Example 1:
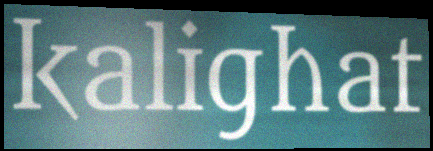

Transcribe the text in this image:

kalighat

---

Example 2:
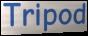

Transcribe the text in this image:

Tripod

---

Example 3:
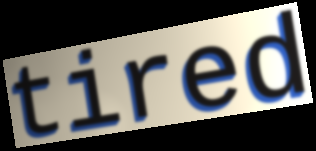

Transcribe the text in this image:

tired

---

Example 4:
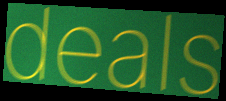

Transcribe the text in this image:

deals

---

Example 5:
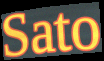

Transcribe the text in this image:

Sato